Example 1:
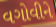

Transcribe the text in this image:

વગોવીને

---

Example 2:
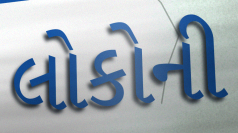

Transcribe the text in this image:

લોકોની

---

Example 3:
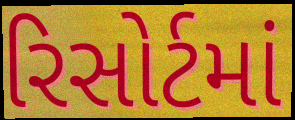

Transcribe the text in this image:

રિસોર્ટમાં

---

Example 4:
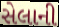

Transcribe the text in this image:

સેલાની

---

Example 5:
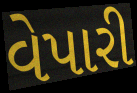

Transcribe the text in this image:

વેપારી